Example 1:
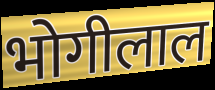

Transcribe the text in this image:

भोगीलाल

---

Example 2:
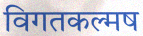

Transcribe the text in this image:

विगतकल्मष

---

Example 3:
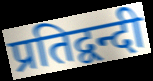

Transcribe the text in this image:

प्रतिद्वन्दी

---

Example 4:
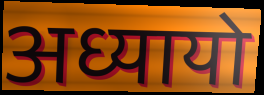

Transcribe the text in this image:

अध्यायो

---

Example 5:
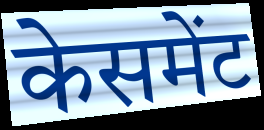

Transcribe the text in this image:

केसमेंट